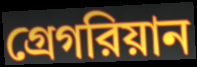
গ্রেগরিয়ান